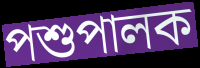
পশুপালক